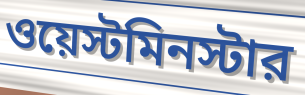
ওয়েস্টমিনস্টার